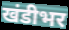
खंडीभर